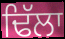
ਢਿੱਲਾ